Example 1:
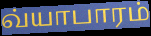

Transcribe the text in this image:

வ்யாபாரம்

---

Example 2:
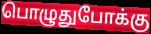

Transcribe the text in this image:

பொழுதுபோக்கு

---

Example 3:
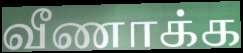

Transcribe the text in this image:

வீணாக்க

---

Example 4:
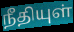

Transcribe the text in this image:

நீதியுள்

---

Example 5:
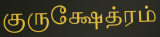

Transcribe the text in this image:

குருக்ஷேத்ரம்